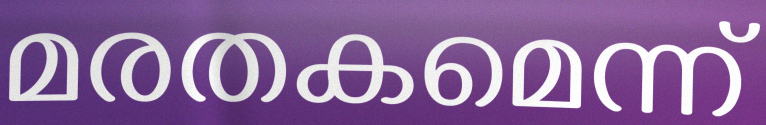
മരതകമെന്ന്